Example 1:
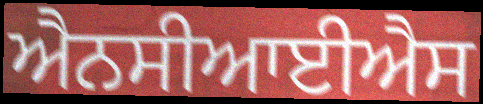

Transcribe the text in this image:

ਐਨਸੀਆਈਐਸ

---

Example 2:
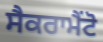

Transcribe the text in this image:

ਸੈਕਰਾਮੈਂਟੋ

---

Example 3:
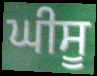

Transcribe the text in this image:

ਘੀਸੂ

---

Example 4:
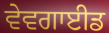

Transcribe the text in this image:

ਵੇਵਗਾਈਡ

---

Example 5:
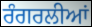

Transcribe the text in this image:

ਰੰਗਰਲੀਆਂ